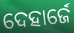
ଦେହାର୍ଜେ